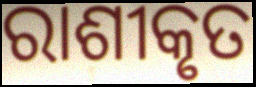
ରାଶୀକୃତ